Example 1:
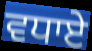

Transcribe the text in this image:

ਵਧਾਏ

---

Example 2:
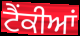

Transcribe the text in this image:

ਟੈਂਕੀਆਂ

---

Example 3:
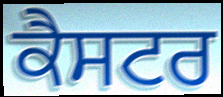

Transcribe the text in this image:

ਕੈਸਟਰ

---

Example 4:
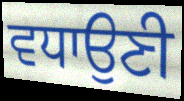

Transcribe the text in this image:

ਵਧਾਉਣੀ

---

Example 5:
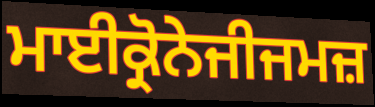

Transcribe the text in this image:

ਮਾਈਕ੍ਰੋਨੇਜੀਜਮਜ਼